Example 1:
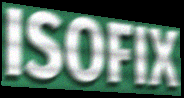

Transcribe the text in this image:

ISOFIX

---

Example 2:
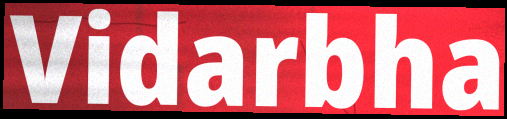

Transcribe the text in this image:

Vidarbha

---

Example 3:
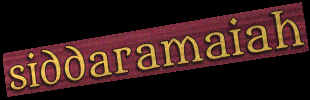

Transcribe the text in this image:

siddaramaiah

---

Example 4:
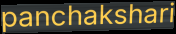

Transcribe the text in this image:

panchakshari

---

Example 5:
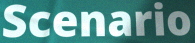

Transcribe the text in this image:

Scenario